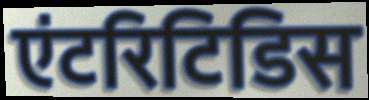
एंटरिटिडिस